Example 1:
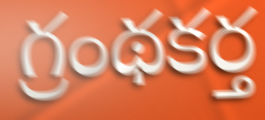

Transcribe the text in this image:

గ్రంథకర్త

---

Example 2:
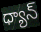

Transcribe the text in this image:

ధ్యాన్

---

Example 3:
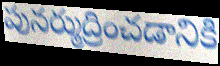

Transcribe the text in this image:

పునర్ముద్రించడానికి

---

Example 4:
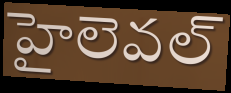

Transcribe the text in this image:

హైలెవల్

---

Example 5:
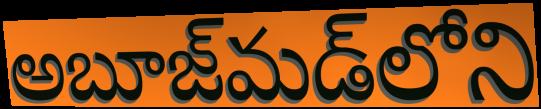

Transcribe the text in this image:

అబూజ్‌మడ్‌లోని